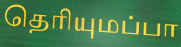
தெரியுமப்பா